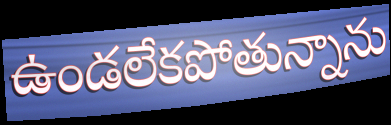
ఉండలేకపోతున్నాను